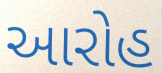
આરોહ